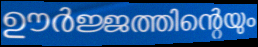
ഊർജ്ജത്തിന്റെയും